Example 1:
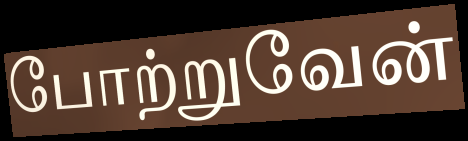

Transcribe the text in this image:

போற்றுவேன்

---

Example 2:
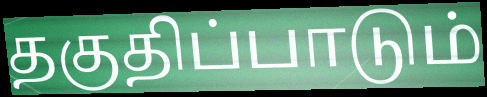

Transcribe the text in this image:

தகுதிப்பாடும்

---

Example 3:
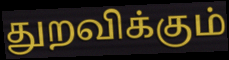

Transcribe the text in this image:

துறவிக்கும்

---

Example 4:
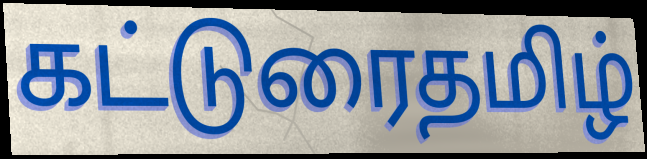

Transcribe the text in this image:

கட்டுரைதமிழ்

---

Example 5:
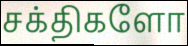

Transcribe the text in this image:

சக்திகளோ